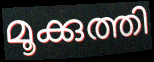
മൂക്കുത്തി